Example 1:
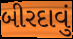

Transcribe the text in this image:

બીરદાવું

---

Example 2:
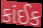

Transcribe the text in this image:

કાંઈક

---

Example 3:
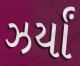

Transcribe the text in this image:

ઝર્યાં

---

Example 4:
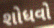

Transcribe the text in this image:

શોધવો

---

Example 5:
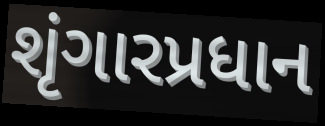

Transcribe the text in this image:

શૃંગારપ્રધાન